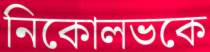
নিকোলভকে